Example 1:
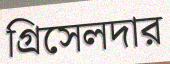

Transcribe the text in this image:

গ্রিসেলদার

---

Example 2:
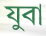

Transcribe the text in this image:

যুবা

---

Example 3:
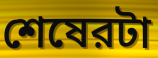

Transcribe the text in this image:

শেষেরটা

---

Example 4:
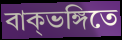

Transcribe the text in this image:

বাক্ভঙ্গিতে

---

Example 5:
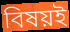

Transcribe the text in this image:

বিষয়ই